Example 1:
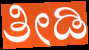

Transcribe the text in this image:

ತೀಡಿ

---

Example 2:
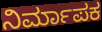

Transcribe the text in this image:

ನಿರ್ಮಾಪಕ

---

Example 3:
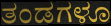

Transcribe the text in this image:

ತಂಡಗಳೂ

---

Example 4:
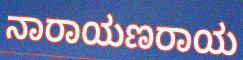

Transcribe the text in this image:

ನಾರಾಯಣರಾಯ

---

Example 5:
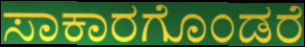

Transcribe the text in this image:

ಸಾಕಾರಗೊಂಡರೆ